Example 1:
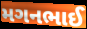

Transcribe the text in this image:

મગનભાઈ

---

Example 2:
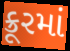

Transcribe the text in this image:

ક્રૂરમાં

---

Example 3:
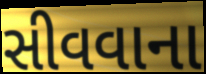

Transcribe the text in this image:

સીવવાના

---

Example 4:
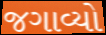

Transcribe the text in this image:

જગાવ્યો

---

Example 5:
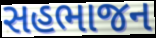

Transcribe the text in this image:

સહભાજન